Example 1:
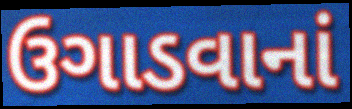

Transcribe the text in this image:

ઉગાડવાનાં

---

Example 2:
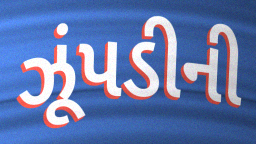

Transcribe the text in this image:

ઝૂંપડીની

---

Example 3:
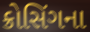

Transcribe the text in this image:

ક્રોસિંગના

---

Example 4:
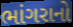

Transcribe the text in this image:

ભાંગરાનો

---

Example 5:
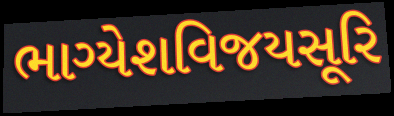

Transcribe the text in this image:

ભાગ્યેશવિજયસૂરિ